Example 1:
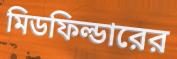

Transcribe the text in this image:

মিডফিল্ডারের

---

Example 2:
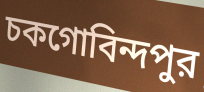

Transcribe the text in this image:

চকগোবিন্দপুর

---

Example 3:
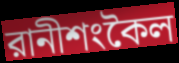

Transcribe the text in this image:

রানীশংকৈল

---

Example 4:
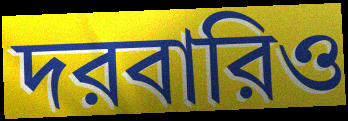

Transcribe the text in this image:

দরবারিও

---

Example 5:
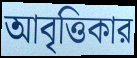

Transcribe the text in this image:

আবৃত্তিকার